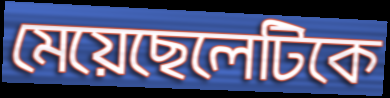
মেয়েছেলেটিকে